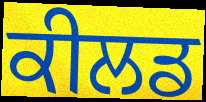
ਕੀਲਡ